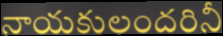
నాయకులందరినీ